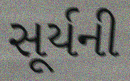
સૂર્યની